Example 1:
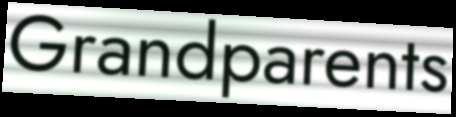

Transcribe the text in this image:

Grandparents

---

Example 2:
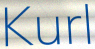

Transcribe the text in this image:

Kurl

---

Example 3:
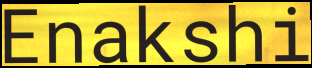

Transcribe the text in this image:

Enakshi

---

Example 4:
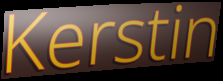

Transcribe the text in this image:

Kerstin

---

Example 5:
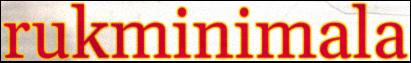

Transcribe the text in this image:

rukminimala